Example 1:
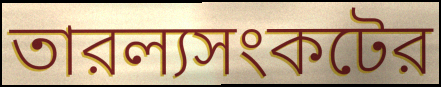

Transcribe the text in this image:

তারল্যসংকটের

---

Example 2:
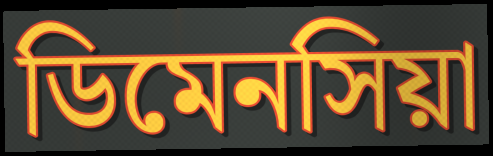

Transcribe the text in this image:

ডিমেনসিয়া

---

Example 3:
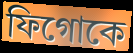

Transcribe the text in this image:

ফিগোকে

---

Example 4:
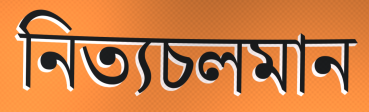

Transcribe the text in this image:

নিত্যচলমান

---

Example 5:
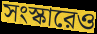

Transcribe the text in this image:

সংস্কারেও